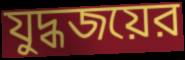
যুদ্ধজয়ের